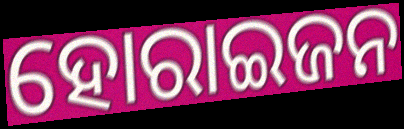
ହୋରାଇଜନ